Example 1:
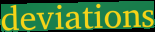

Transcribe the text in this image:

deviations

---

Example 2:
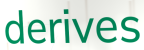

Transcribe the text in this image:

derives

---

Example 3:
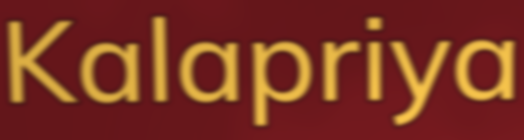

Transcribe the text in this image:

Kalapriya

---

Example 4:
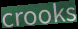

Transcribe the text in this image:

crooks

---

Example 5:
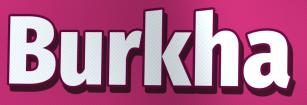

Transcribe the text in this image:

Burkha